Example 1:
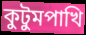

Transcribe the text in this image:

কুটুমপাখি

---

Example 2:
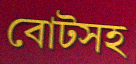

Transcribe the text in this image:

বোটসহ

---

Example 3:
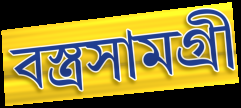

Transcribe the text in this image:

বস্ত্রসামগ্রী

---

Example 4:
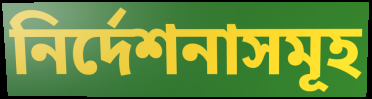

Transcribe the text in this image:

নির্দেশনাসমূহ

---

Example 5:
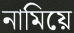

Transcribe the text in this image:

নামিয়ে